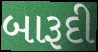
બારૂદી